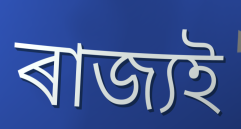
ৰাজ্যই